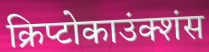
क्रिप्टोकाउंक्शंस